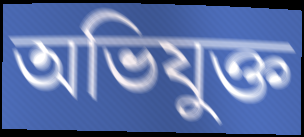
অভিযুক্ত